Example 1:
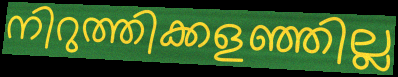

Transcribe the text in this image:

നിറുത്തിക്കളഞ്ഞില്ല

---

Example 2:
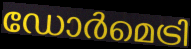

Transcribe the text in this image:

ഡോർമെട്രി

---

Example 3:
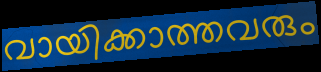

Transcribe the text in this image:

വായിക്കാത്തവരും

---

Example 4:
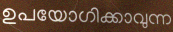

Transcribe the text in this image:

ഉപയോഗിക്കാവുന്ന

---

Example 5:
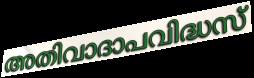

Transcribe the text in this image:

അതിവാദാപവിദ്ധസ്